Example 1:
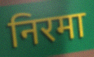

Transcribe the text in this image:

निरमा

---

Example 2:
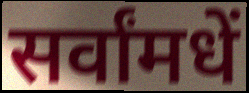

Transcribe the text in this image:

सर्वांमधें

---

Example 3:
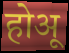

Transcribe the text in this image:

होअू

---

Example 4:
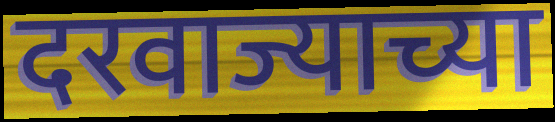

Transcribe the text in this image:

दरवाज्याच्या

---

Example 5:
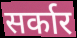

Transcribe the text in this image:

सर्कार